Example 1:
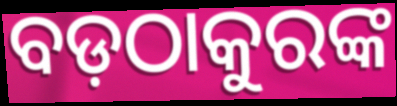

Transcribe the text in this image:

ବଡ଼ଠାକୁରଙ୍କ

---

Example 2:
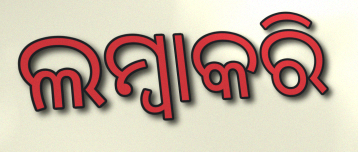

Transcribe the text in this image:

ଲମ୍ବାକରି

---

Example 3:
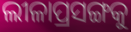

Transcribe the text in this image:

ଲୀଳାପ୍ରସଙ୍ଗକୁ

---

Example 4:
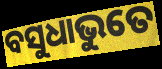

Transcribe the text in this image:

ବସୁଧାଭୁତେ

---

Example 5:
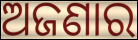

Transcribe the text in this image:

ଅଜଣାର